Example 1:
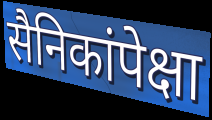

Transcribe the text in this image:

सैनिकांपेक्षा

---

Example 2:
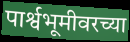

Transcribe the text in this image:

पार्श्वभूमीवरच्या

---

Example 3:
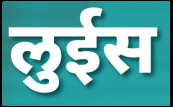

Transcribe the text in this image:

लुईस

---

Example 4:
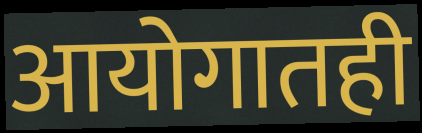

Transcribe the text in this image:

आयोगातही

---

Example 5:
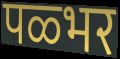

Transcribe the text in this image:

पळ्भर